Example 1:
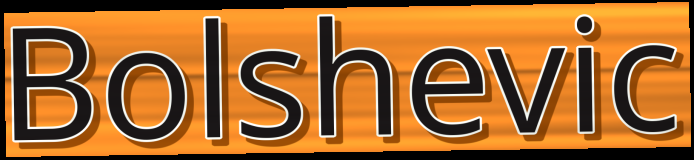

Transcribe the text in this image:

Bolshevic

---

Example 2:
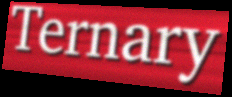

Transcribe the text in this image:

Ternary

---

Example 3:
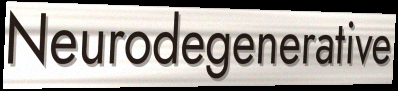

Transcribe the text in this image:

Neurodegenerative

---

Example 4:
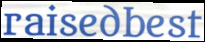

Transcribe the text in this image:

raisedbest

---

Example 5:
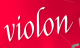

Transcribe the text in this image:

violon